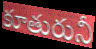
కూతురునీ